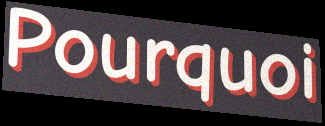
Pourquoi